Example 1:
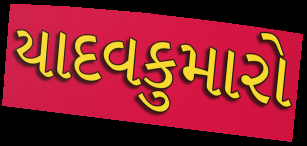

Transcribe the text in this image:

યાદવકુમારો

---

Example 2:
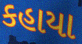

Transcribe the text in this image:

કહાયા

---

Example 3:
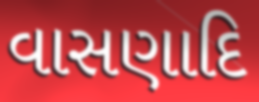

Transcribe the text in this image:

વાસણાદિ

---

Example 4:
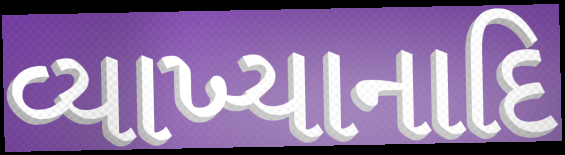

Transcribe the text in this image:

વ્યાખ્યાનાદિ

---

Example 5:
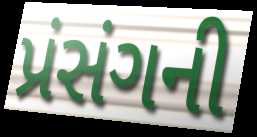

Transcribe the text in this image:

પ્રંસંગની